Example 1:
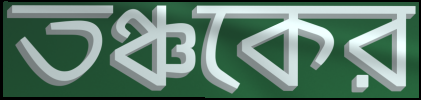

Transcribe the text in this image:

তঞ্চকের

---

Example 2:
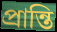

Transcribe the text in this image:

প্রান্তি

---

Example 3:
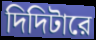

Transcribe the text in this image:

দিদিটারে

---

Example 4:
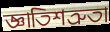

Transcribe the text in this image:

জ্ঞাতিশত্রুতা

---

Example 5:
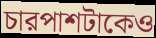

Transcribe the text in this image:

চারপাশটাকেও